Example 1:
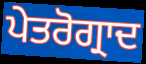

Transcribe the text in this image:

ਪੇਤਰੋਗ੍ਰਾਦ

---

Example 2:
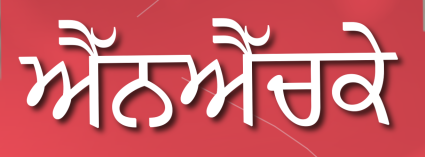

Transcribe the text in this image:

ਐੱਨਐੱਚਕੇ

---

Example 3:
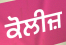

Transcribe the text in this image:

ਕੋਲੀਜ਼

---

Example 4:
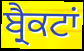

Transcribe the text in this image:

ਬ੍ਰੈਕਟਾਂ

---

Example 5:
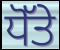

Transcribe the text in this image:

ਧੋੱਤੇ